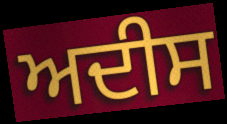
ਅਦੀਸ